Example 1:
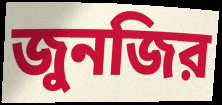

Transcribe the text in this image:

জুনজির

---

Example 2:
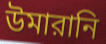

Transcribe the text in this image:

উমারানি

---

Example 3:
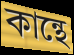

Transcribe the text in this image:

কান্থে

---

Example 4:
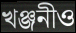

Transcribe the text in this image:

খঞ্জনীও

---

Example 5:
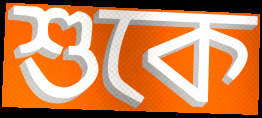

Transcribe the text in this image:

শুকে